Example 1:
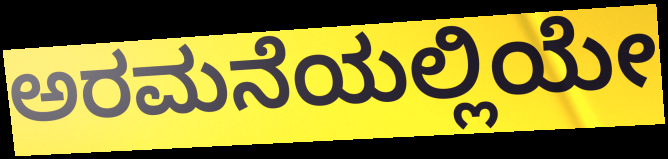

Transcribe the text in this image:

ಅರಮನೆಯಲ್ಲಿಯೇ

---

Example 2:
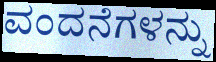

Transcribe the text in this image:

ವಂದನೆಗಳನ್ನು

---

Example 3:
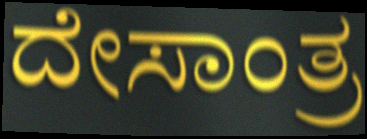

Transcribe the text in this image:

ದೇಸಾಂತ್ರ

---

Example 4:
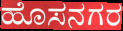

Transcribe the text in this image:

ಹೊಸನಗರ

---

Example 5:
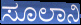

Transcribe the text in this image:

ಸೂಲಾನಿ